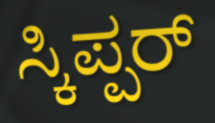
ಸ್ಕಿಪ್ಪರ್